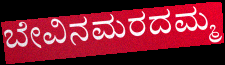
ಬೇವಿನಮರದಮ್ಮ